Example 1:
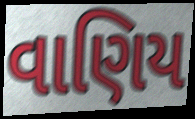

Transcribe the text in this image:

વાણિય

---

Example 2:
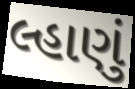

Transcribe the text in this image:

લ્હાણું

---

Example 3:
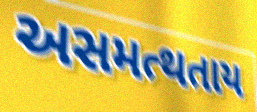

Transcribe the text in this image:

અસમત્થતાય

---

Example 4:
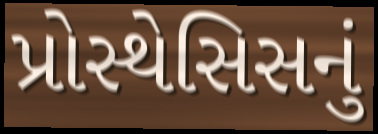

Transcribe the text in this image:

પ્રોસ્થેસિસનું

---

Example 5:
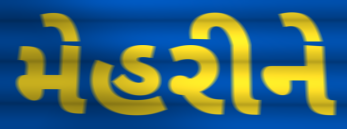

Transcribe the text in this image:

મેહરીને